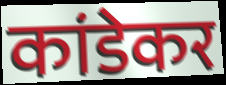
कांडेकर